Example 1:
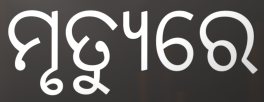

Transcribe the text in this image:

ମୃତ୍ୟୁରେ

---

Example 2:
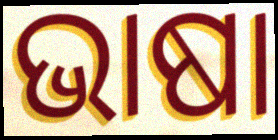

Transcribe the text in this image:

ଭାଷା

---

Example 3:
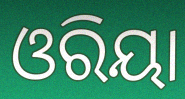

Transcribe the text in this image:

ଓରିୟା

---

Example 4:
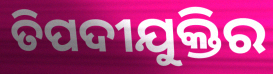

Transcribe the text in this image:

ତିପଦୀଯୁକ୍ତିର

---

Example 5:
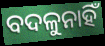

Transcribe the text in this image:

ବଦଳୁନାହିଁ